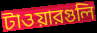
টাওয়ারগুলি